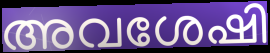
അവശേഷി